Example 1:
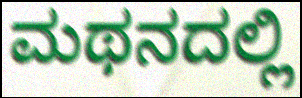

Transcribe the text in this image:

ಮಥನದಲ್ಲಿ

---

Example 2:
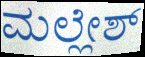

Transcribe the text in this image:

ಮಲ್ಲೇಶ್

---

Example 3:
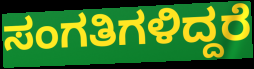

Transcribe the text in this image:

ಸಂಗತಿಗಳಿದ್ದರೆ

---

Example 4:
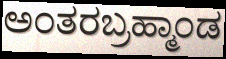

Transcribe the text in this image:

ಅಂತರಬ್ರಹ್ಮಾಂಡ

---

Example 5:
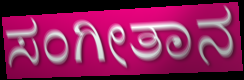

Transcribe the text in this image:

ಸಂಗೀತಾನ